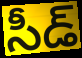
సీడ్